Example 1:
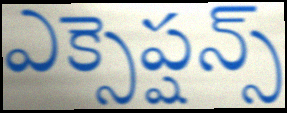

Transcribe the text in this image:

ఎక్సెప్షన్స్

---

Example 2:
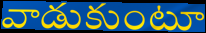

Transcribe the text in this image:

వాడుకుంటూ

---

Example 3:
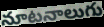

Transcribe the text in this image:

నూటనాలుగు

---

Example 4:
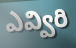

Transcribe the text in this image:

ఎవ్విరి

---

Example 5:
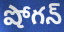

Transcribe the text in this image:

షోగన్